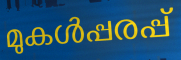
മുകൾപ്പരപ്പ്